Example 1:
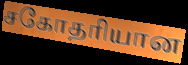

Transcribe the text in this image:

சகோதரியான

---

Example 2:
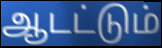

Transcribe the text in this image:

ஆடட்டும்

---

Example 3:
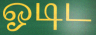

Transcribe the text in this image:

ஓடிட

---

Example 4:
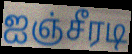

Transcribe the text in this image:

ஐஞ்சீரடி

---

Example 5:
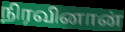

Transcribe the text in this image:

நிரவினான்